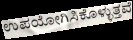
ಉಪಯೋಗಿಸಿಕೊಳ್ಳುತ್ತವೆ